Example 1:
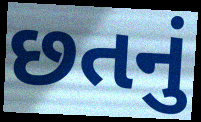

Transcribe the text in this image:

છતનું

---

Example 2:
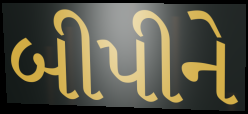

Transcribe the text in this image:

બીપીને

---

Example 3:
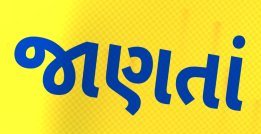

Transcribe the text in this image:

જાણતાં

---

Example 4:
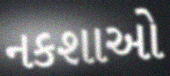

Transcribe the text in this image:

નકશાઓ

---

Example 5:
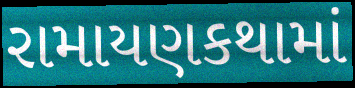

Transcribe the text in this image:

રામાયણકથામાં